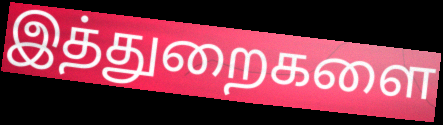
இத்துறைகளை